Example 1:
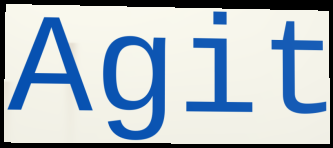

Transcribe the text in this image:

Agit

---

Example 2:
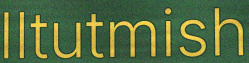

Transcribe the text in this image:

Iltutmish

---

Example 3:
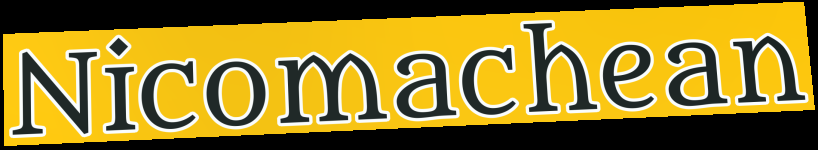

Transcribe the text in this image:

Nicomachean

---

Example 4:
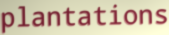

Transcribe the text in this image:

plantations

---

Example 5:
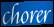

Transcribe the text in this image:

chorer